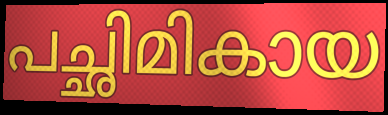
പച്ഛിമികായ